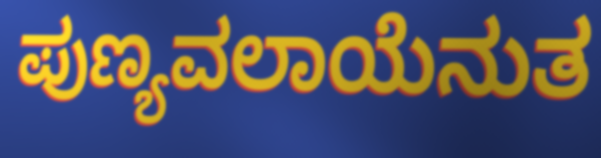
ಪುಣ್ಯವಲಾಯೆನುತ